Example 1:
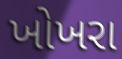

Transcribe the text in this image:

ખોખરા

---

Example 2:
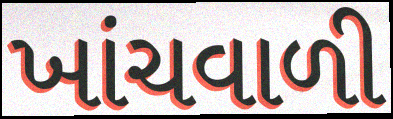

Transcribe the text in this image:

ખાંચવાળી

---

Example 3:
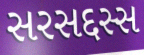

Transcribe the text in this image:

સરસદ્દસ્સ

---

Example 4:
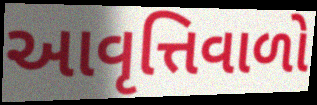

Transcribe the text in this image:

આવૃત્તિવાળો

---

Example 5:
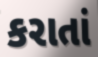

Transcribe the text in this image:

કરાતાં